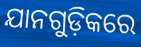
ଯାନଗୁଡ଼ିକରେ